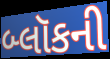
બ્લૉકની